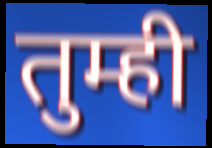
तुम्ही